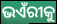
ଭଏଁରୀକୁ